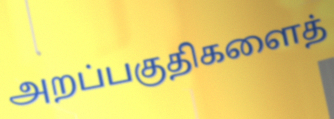
அறப்பகுதிகளைத்